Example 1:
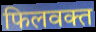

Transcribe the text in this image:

फिलवक्‍त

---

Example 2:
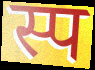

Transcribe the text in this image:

स्प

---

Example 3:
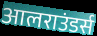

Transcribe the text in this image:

आलराउंडर्स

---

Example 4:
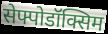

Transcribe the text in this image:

सेफ्पोडॉक्सिम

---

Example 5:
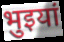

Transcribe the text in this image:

भुइयां